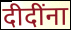
दीदींना